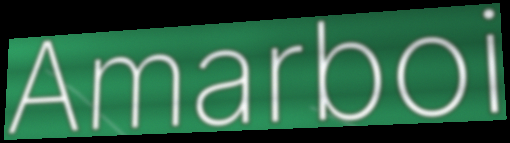
Amarboi